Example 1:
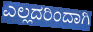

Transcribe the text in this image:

ಎಲ್ಲದರಿಂದಾಗಿ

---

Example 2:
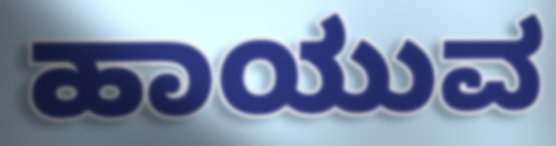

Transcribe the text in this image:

ಹಾಯುವ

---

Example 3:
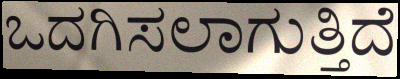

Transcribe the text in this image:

ಒದಗಿಸಲಾಗುತ್ತಿದೆ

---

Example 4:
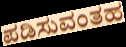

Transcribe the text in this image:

ಪಡಿಸುವಂತಹ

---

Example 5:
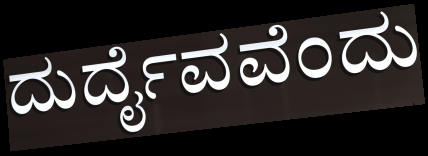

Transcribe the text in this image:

ದುರ್ದೈವವೆಂದು